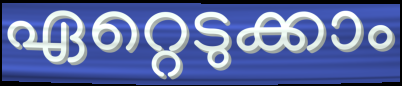
ഏറ്റെടുക്കാം